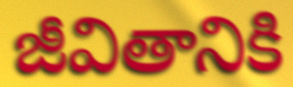
జీవితానికి